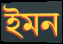
ইমন